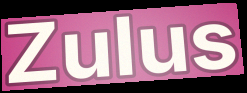
Zulus